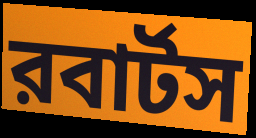
রবার্টস